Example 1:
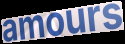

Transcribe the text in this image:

amours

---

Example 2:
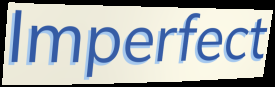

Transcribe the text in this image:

Imperfect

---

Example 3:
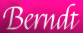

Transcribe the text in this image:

Berndt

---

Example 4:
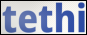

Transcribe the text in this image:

tethi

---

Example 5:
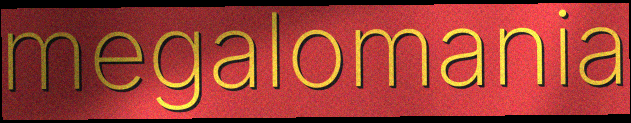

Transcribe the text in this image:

megalomania